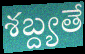
శబ్ద్యతే